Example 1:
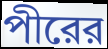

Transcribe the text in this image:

পীরের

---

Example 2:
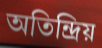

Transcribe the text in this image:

অতিন্দ্রিয়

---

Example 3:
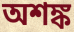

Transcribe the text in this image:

অশঙ্ক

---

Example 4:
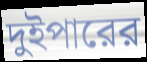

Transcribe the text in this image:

দুইপারের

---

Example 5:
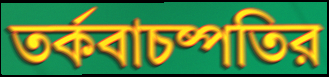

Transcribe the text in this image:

তর্কবাচষ্পতির